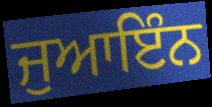
ਜੁਆਇੰਨ